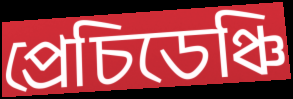
প্ৰেচিডেঞ্চি